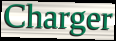
Charger